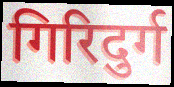
गिरिदुर्ग